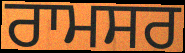
ਰਾਮਸਰ